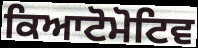
ਕਿਆਟੋਮੋਟਿਵ